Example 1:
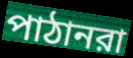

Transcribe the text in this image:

পাঠানরা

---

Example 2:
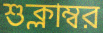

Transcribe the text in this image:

শুক্লাম্বর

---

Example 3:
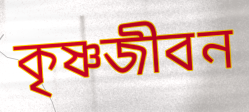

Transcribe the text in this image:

কৃষ্ণজীবন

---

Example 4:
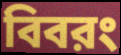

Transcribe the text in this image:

বিবরং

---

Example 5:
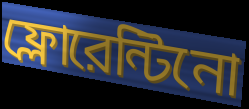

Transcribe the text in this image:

ফ্লোরেন্টিনো